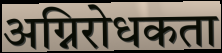
अग्निरोधकता